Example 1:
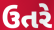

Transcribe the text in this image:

ઉતરે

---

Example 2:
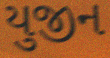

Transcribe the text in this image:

યુજીન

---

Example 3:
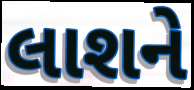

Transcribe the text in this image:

લાશને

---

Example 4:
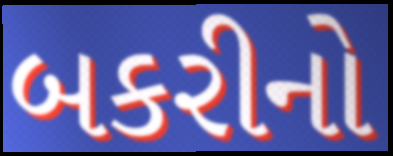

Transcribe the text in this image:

બકરીનો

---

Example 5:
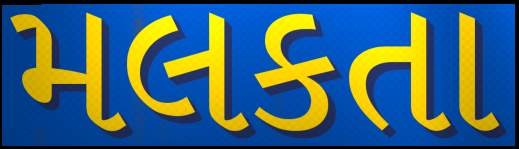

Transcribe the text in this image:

મલકતા